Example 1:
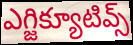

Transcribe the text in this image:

ఎగ్జిక్యూటివ్స్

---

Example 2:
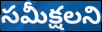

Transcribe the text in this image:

సమీక్షలని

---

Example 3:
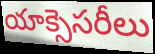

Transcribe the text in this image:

యాక్సెసరీలు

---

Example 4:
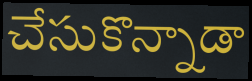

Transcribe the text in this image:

చేసుకొన్నాడా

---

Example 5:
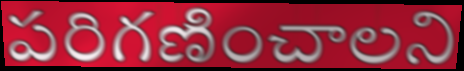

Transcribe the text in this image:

పరిగణించాలని